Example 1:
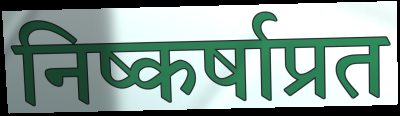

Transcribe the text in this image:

निष्कर्षाप्रत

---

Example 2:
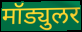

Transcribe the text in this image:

मॉड्युलर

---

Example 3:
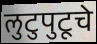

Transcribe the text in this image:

लुटुपुटूचे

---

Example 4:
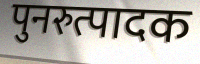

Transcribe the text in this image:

पुनरुत्पादक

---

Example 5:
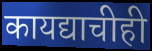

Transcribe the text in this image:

कायद्याचीही